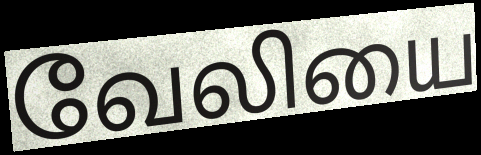
வேலியை